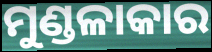
ମୁଣ୍ଡଳାକାର